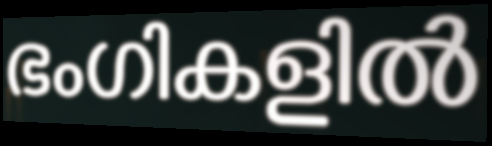
ഭംഗികളിൽ